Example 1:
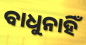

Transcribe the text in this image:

ବାଧୁନାହିଁ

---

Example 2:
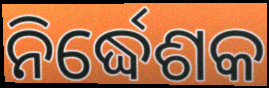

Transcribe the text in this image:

ନିର୍ଦ୍ଧେଶକ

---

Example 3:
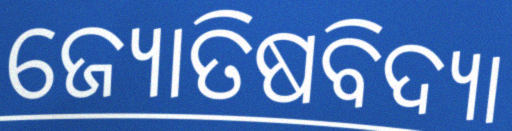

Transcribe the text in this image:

ଜ୍ୟୋତିଷବିଦ୍ୟା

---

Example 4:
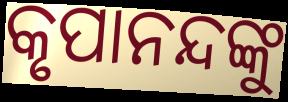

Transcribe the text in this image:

କୃପାନନ୍ଦଙ୍କୁ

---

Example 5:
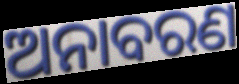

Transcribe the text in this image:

ଅନାବରଣ